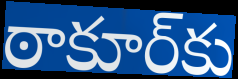
ఠాకూర్‌కు